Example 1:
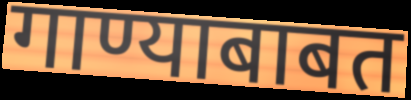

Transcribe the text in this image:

गाण्याबाबत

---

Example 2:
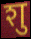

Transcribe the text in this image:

शु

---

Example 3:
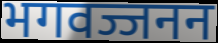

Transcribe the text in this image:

भगवज्जनन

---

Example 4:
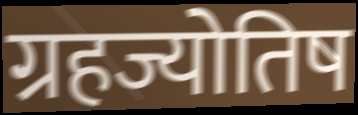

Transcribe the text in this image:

ग्रहज्योतिष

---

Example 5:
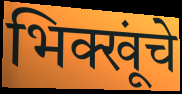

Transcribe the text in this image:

भिक्खूंचे